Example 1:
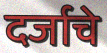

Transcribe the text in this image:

दर्जाचे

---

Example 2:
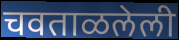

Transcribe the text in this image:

चवताळलेली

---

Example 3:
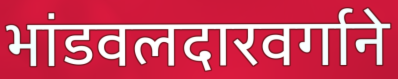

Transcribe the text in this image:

भांडवलदारवर्गाने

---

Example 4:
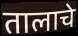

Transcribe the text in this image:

तालाचे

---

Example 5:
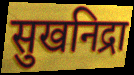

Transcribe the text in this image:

सुखनिद्रा